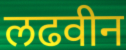
लढवीन